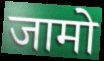
जामो